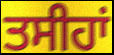
ਤਸੀਹਾਂ